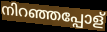
നിറഞ്ഞപ്പോള്